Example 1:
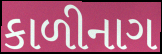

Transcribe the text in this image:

કાળીનાગ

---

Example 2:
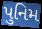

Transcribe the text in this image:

પુનિમ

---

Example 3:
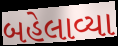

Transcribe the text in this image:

બહેલાવ્યા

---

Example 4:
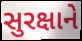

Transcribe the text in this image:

સુરક્ષાને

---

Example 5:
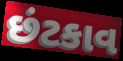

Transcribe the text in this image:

છંટકાવ